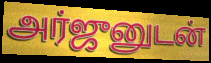
அர்ஜுனுடன்